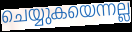
ചെയ്യുകയെന്നല്ല